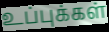
உப்புக்கள்